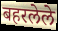
बहरलेले